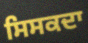
ਸਿਸਕਦਾ